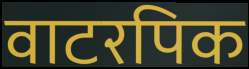
वाटरपिक